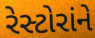
રેસ્ટોરાંને